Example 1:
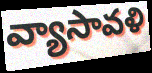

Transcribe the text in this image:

వ్యాసావళి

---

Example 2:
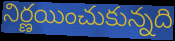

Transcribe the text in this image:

నిర్ణయించుకున్నది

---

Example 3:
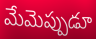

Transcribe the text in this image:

మేమెప్పుడూ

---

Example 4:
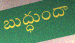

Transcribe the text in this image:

బుద్ధుందా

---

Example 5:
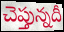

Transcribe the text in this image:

చెప్తున్నదీ